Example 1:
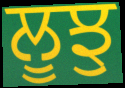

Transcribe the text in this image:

ਲੂਝੁ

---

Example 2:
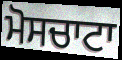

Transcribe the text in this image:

ਮੋਸਚਾਟਾ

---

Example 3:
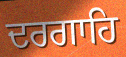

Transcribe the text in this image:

ਦਰਗਾਹਿ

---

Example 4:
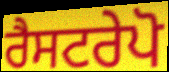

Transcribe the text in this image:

ਰੈਸਟਰੇਪੋ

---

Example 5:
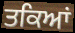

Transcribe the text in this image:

ਤਕਿਆਂ